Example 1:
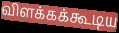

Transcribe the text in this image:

விளக்கக்கூடிய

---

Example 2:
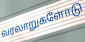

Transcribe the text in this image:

வரலாறுகளோடு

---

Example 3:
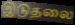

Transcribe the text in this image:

இடுதலை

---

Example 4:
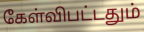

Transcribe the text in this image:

கேள்விபட்டதும்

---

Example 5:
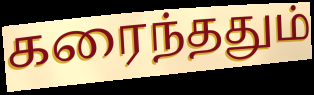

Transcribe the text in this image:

கரைந்ததும்